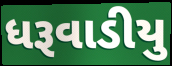
ધરૂવાડીયુ